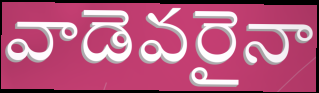
వాడెవరైనా